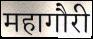
महागौरी